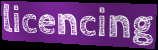
licencing